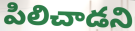
పిలిచాడని